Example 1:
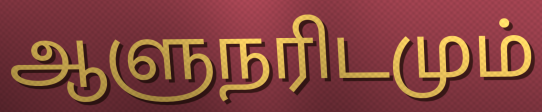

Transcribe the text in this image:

ஆளுநரிடமும்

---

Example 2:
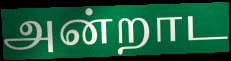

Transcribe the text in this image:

அன்றாட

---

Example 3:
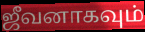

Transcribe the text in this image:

ஜீவனாகவும்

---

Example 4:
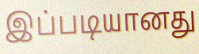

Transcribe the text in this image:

இப்படியானது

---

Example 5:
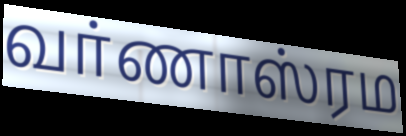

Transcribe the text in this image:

வர்ணாஸ்ரம